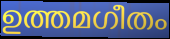
ഉത്തമഗീതം